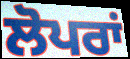
ਲੋਪਰਾਂ